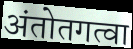
अंतोतगत्वा